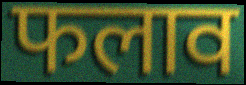
फलाव